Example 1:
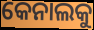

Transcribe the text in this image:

କେନାଲକୁ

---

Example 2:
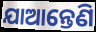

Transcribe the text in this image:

ଯାଆନ୍ତେଣି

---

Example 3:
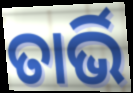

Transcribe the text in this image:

ତାର୍ଭି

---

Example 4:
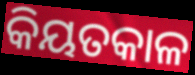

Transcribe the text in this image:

କିୟତକାଳ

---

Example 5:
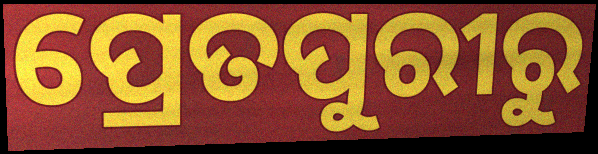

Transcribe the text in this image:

ପ୍ରେତପୁରୀରୁ